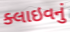
ક્લાઇવનું